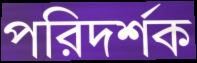
পরিদর্শক